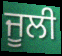
ਜੂਲੀ